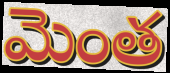
మెంత